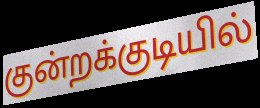
குன்றக்குடியில்